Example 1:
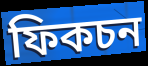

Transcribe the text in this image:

ফিকচন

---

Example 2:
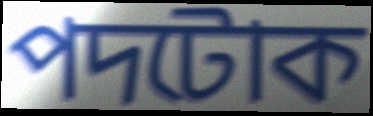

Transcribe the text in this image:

পদটোক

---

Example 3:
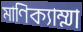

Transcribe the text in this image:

মাণিক্যাম্মা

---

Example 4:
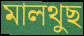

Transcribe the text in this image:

মালথুছ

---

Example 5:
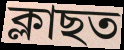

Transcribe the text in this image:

ক্লাছত